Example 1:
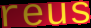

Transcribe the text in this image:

reus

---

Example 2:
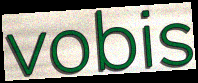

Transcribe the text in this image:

vobis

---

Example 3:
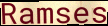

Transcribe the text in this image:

Ramses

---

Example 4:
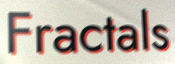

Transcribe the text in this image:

Fractals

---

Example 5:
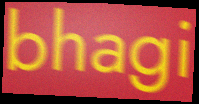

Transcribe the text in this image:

bhagi